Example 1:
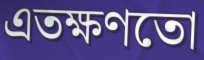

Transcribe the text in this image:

এতক্ষণতো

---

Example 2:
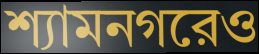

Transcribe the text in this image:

শ্যামনগরেও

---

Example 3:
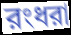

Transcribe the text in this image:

রংধরা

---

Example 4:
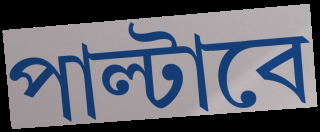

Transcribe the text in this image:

পাল্টাবে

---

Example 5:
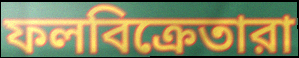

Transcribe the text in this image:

ফলবিক্রেতারা